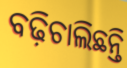
ବଢ଼ିଚାଲିଛନ୍ତି